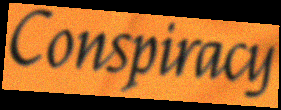
Conspiracy